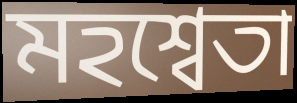
মহশ্বেতা